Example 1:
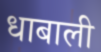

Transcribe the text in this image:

धाबाली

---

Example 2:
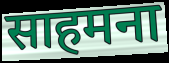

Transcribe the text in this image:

साहमना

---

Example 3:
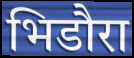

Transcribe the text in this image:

भिडौरा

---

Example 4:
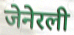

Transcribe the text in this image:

जेनेरली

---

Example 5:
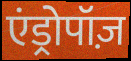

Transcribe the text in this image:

एंड्रोपॉज़